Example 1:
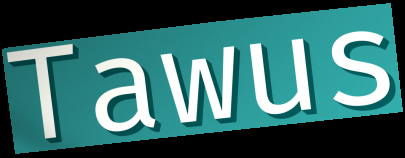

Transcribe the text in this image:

Tawus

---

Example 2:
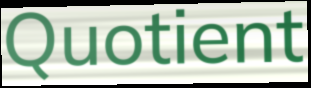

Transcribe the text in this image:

Quotient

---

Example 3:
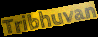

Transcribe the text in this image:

Tribhuvan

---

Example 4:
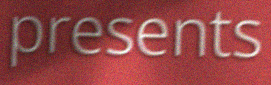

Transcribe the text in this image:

presents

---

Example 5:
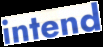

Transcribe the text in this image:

intend